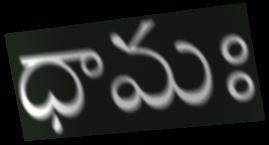
ధామః